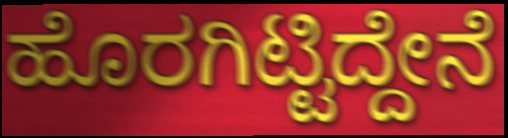
ಹೊರಗಿಟ್ಟಿದ್ದೇನೆ